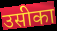
उसीका